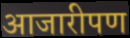
आजारीपण